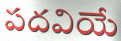
పదవియే